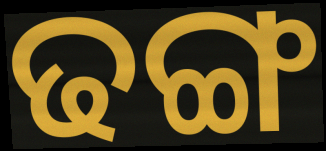
ଢଙ୍ଗ